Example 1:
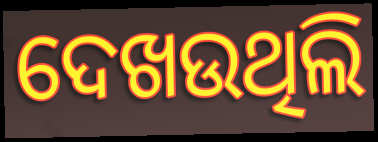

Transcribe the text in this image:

ଦେଖଉଥିଲି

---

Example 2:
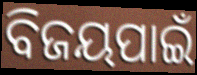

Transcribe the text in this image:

ବିଜୟପାଇଁ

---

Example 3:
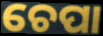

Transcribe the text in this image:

ଚେପା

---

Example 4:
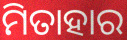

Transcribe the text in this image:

ମିତାହାର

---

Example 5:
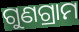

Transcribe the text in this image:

ଗୁଣଗ୍ରାମ